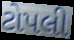
ટોપલી